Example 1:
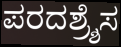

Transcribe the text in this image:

ಪರದಶ್ರ್ಶೆಸ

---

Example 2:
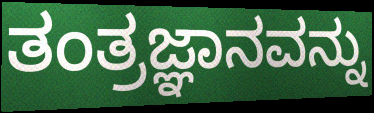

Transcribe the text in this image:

ತಂತ್ರಜ್ಞಾನವನ್ನು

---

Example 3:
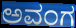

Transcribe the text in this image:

ಅವಂಗ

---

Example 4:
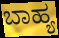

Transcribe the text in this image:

ಬಾಹ್ಯ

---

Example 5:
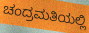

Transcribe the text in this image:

ಚಂದ್ರಮತಿಯಲ್ಲಿ